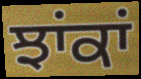
ਝਾਂਕਾਂ